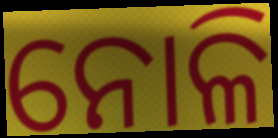
ନୋଳି